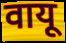
वायू